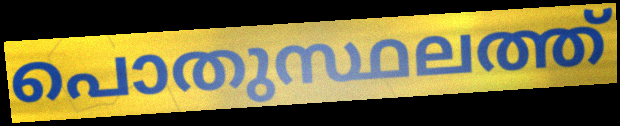
പൊതുസ്ഥലത്ത്